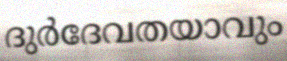
ദുർദേവതയാവും